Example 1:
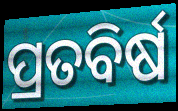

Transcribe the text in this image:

ପ୍ରତବିର୍ଷ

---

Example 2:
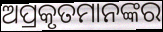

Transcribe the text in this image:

ଅପ୍ରକୃତମାନଙ୍କର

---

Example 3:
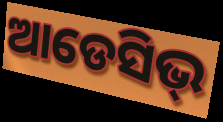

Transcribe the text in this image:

ଆଡେସିଭ୍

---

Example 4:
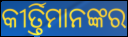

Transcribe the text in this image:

କୀର୍ତ୍ତିମାନଙ୍କର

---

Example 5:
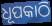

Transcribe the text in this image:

ଧୂପକାଠି